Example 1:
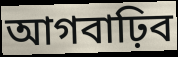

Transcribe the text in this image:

আগবাঢ়িব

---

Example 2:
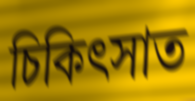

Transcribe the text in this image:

চিকিৎসাত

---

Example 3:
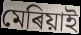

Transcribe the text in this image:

মেৰিয়াই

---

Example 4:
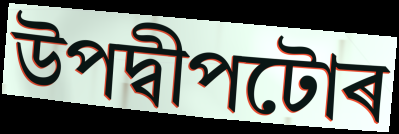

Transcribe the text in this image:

উপদ্বীপটোৰ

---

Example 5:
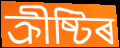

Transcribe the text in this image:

ক্ৰীষ্টিৰ